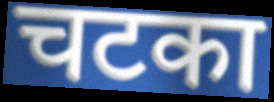
चटका